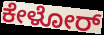
ಕೇಳೋರ್